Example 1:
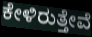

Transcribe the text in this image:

ಕೇಳಿರುತ್ತೇವೆ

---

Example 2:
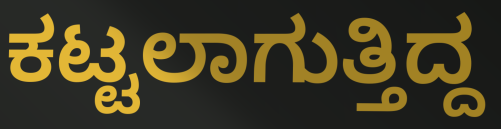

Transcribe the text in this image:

ಕಟ್ಟಲಾಗುತ್ತಿದ್ದ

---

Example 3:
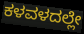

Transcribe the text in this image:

ಕಳವಳದಲ್ಲೇ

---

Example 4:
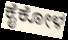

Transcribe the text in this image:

ಕೈಕೋಳ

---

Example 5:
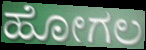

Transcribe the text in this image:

ಹೋಗಲ